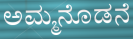
ಅಮ್ಮನೊಡನೆ